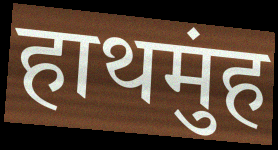
हाथमुंह